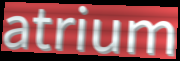
atrium